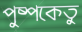
পুষ্পকেতু